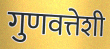
गुणवत्तेशी